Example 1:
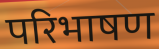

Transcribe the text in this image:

परिभाषण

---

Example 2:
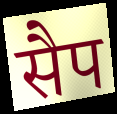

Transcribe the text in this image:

सैप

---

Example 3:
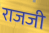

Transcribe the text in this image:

राजजी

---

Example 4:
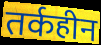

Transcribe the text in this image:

तर्कहीन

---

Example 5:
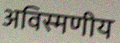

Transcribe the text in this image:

अविस्मणीय